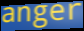
anger